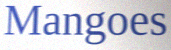
Mangoes